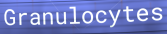
Granulocytes